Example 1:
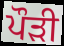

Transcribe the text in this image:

ਪੌੜੀ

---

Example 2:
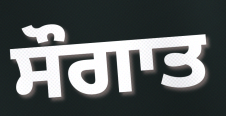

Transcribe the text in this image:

ਸੌਗਾਤ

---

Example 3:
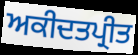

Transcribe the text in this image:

ਅਕੀਦਤਪ੍ਰੀਤ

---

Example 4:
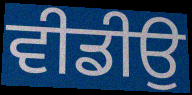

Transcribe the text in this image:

ਵੀਡੀਉ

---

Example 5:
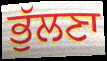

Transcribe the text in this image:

ਭੁੱਲਣਾ